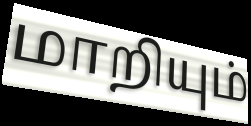
மாறியும்